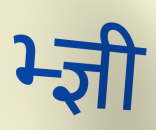
भ्ज्ञी